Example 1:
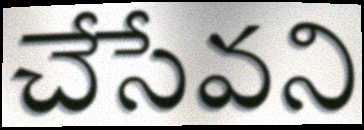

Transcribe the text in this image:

చేసేవని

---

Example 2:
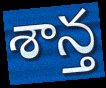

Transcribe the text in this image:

శాన్త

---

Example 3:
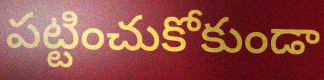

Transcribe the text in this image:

పట్టించుకోకుండా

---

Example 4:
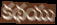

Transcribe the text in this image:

కథయు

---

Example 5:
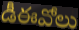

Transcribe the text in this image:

డీఈవోలు